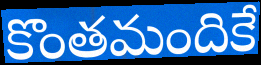
కొంతమందికే